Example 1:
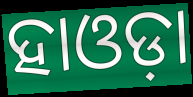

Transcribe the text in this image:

ହାଓଡ଼ା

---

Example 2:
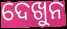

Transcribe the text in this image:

ଦେଖୁନ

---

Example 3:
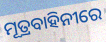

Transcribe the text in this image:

ମୂତ୍ରବାହିନୀରେ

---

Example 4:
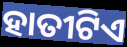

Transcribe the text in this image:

ହାତୀଟିଏ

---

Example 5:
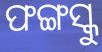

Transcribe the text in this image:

ଫଙ୍ଗସ୍କୁ